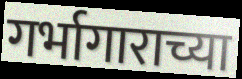
गर्भागाराच्या